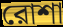
রোশা